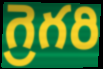
గ్రెగరి